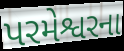
પરમેશ્વરના